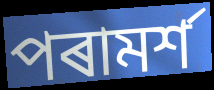
পৰামৰ্শ